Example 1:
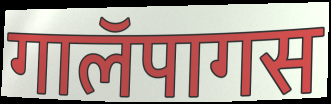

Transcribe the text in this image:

गालॅपागस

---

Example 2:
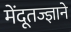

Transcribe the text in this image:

मेंदूतज्ज्ञाने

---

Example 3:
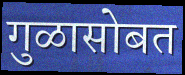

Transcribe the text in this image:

गुळासोबत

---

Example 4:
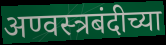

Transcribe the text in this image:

अण्वस्त्रबंदीच्या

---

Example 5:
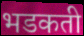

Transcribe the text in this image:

भडकती